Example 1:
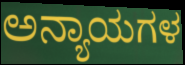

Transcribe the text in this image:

ಅನ್ಯಾಯಗಳ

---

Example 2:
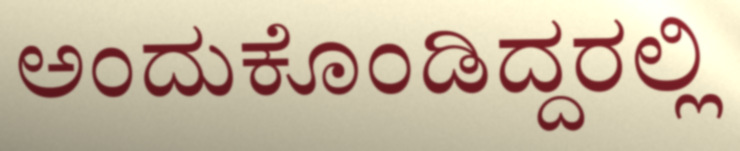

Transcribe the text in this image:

ಅಂದುಕೊಂಡಿದ್ದರಲ್ಲಿ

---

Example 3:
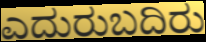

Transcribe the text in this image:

ಎದುರುಬದಿರು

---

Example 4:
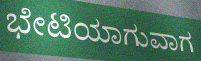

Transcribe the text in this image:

ಭೇಟಿಯಾಗುವಾಗ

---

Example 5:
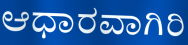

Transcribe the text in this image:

ಆಧಾರವಾಗಿರಿ